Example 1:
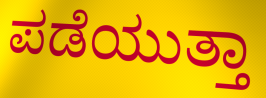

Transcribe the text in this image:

ಪಡೆಯುತ್ತಾ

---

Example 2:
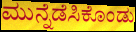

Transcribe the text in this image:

ಮುನ್ನೆಡೆಸಿಕೊಂಡು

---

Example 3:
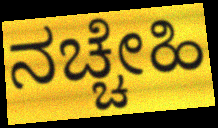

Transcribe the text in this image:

ನಚ್ಚೇಹಿ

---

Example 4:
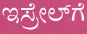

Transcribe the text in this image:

ಇಸ್ರೇಲ್‍ಗೆ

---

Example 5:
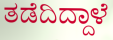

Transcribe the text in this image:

ತಡೆದಿದ್ದಾಳೆ